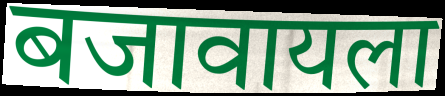
बजावायला